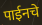
पाईनचे